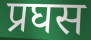
प्रघस